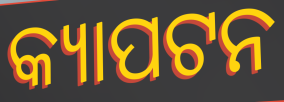
କ୍ୟାପଟନ